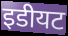
इडीयट